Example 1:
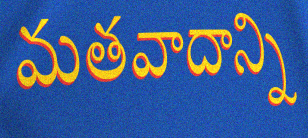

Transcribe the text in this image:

మతవాదాన్ని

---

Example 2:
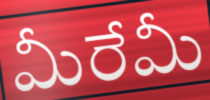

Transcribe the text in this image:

మీరేమీ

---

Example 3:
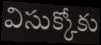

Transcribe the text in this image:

విసుక్కోకు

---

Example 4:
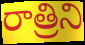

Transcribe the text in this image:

రాత్రిని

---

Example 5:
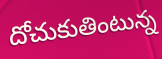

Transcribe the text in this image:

దోచుకుతింటున్న